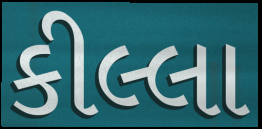
કીલ્લા